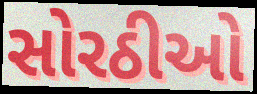
સોરઠીઓ